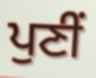
ਪੁਣੀਂ